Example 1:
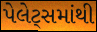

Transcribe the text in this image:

પેલેટ્સમાંથી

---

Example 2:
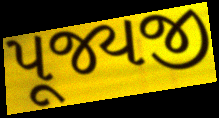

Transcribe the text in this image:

પૂજ્યજી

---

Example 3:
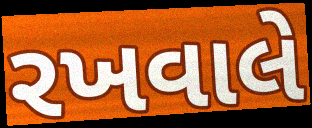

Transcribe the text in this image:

રખવાલે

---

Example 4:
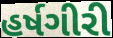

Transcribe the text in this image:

હર્ષગીરી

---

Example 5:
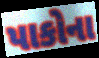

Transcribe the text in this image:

પાકોના